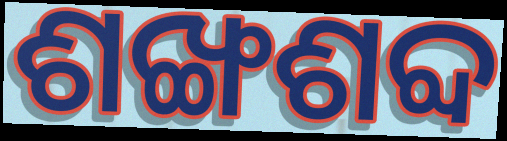
ଶଙ୍ଖଶବ୍ଦ